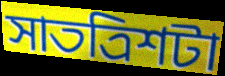
সাতত্ৰিশটা